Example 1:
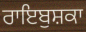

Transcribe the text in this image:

ਰਾਇਬੁਸ਼ਕਾ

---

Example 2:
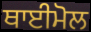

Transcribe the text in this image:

ਥਾਈਮੋਲ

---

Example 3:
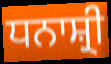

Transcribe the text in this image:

ਧਨਾਸ਼੍ਰੀ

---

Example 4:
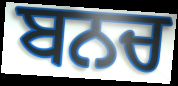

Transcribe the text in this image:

ਬਨਚ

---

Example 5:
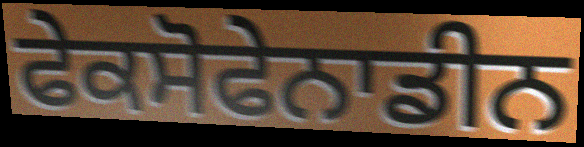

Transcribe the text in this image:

ਫੇਕਸੋਫੇਨਾਡੀਨ